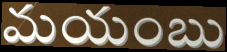
మయంబు